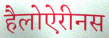
हैलोऐरीनस